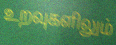
உறவுகளிலும்